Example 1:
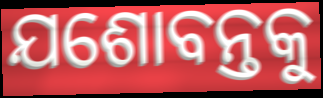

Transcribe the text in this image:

ଯଶୋବନ୍ତକୁ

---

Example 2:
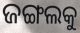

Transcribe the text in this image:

ଜଙ୍ଗଲକୁ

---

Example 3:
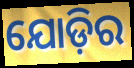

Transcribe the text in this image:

ଯୋଡ଼ିର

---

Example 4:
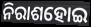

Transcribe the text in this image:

ନିରାଶହୋଇ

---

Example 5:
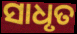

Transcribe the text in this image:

ସାଧୃତ